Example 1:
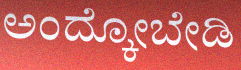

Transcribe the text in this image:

ಅಂದ್ಕೋಬೇಡಿ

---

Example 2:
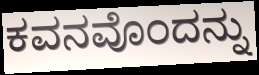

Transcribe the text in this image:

ಕವನವೊಂದನ್ನು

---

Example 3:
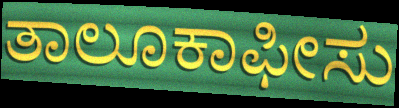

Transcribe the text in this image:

ತಾಲೂಕಾಫೀಸು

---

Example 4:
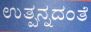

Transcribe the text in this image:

ಉತ್ಪನ್ನದಂತೆ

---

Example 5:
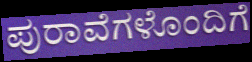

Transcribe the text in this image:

ಪುರಾವೆಗಳೊಂದಿಗೆ